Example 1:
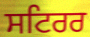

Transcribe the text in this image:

ਸਟਿਰਰ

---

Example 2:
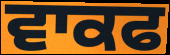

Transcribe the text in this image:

ਵਾਕਫ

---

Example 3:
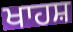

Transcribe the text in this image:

ਖਾਹਸ਼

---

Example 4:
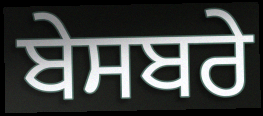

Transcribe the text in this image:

ਬੇਸਬਰੇ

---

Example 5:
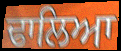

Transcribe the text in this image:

ਢਾਲਿਆ